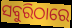
ସବୁରିଠାରେ